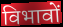
विभावों